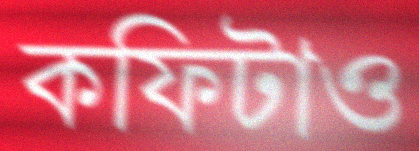
কফিটাও